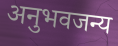
अनुभवजन्य